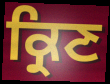
ਕ੍ਰਿਣ